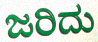
ಜರಿದು